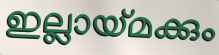
ഇല്ലായ്മക്കും